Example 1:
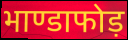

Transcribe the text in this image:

भाण्डाफोड़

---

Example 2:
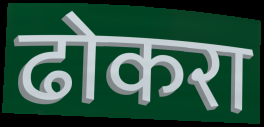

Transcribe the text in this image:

ढोकरा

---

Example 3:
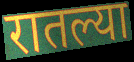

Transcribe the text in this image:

रातल्या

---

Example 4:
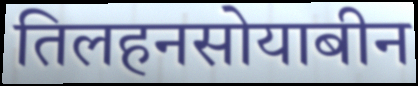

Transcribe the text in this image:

तिलहनसोयाबीन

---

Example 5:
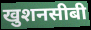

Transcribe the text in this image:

खुशनसीबी